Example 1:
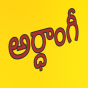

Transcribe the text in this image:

అర్ధాంగీ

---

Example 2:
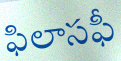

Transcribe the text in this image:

ఫిలాసఫీ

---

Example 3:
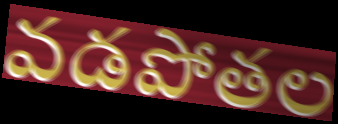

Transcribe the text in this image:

వడపోతల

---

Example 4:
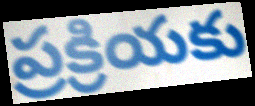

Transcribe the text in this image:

ప్రక్రియకు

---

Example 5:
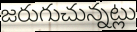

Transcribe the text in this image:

జరుగుచున్నట్లు